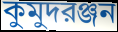
কুমুদরঞ্জন